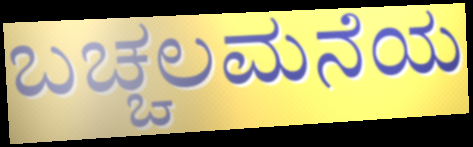
ಬಚ್ಚಲಮನೆಯ